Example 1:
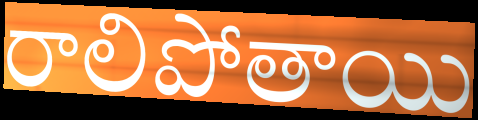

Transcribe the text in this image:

రాలిపోతాయి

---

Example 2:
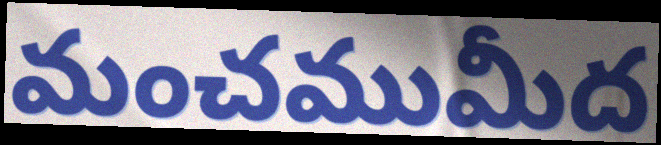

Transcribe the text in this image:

మంచముమీద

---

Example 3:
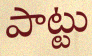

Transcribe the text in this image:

పాట్టు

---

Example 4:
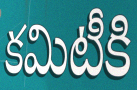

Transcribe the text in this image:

కమిటీకి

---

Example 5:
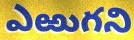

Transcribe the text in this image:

ఎఱుగని